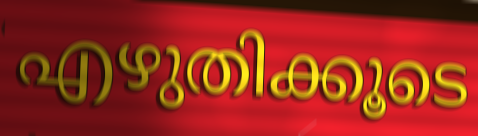
എഴുതിക്കൂടെ